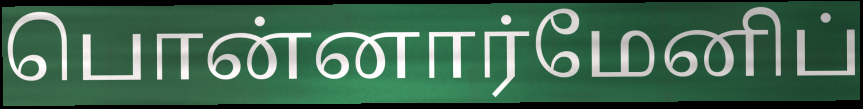
பொன்னார்மேனிப்